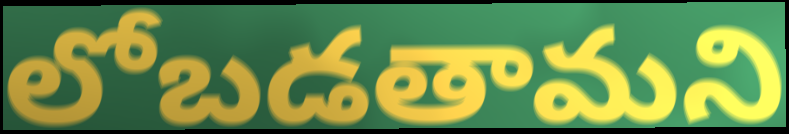
లోబడతామని